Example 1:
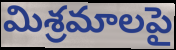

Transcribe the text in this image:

మిశ్రమాలపై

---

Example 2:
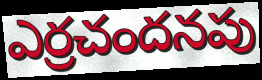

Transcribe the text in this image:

ఎర్రచందనపు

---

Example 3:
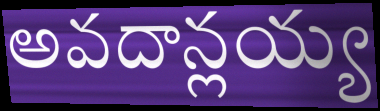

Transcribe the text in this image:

అవదాన్లయ్య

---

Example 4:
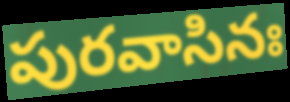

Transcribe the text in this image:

పురవాసినః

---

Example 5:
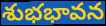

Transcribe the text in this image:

శుభభావన